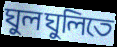
ঘুলঘুলিতে